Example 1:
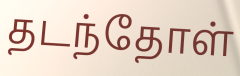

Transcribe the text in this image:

தடந்தோள்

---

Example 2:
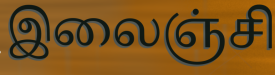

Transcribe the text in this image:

இலைஞ்சி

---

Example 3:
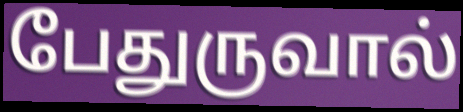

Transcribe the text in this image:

பேதுருவால்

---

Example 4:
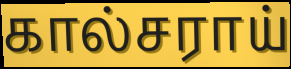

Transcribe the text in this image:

கால்சராய்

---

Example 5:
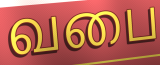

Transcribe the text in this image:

வபை